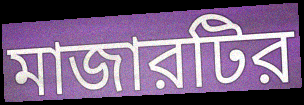
মাজারটির